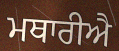
ਮਥਾਰੀਐ